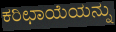
ಕರಿಛಾಯೆಯನ್ನು